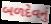
બળદેવનું